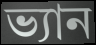
ভ্যান